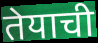
तेयाची